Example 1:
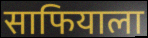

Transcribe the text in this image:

साफियाला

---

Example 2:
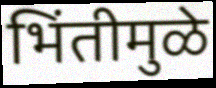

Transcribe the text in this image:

भिंतीमुळे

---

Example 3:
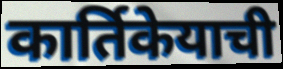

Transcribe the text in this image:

कार्तिकेयाची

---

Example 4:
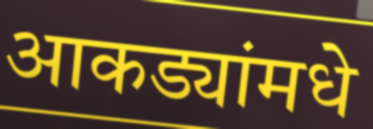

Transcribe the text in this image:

आकड्यांमधे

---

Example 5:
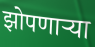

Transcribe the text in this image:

झोपणाऱ्या